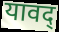
यावद्